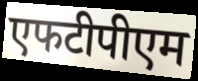
एफटीपीएम